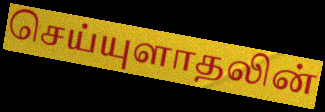
செய்யுளாதலின்